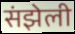
संझेली